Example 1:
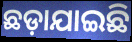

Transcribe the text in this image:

ଛଡ଼ାଯାଇଛି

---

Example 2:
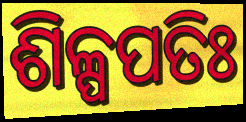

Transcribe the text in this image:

ଶିଳ୍ପପତିଃ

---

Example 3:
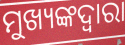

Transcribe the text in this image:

ମୁଖ୍ୟଙ୍କଦ୍ଵାରା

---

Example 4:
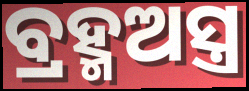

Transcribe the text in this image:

ବ୍ରହ୍ମଅସ୍ତ୍ର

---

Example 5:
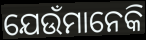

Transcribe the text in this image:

ଯେଉଁମାନେକି